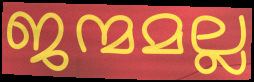
ജന്മമല്ല